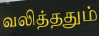
வலித்ததும்